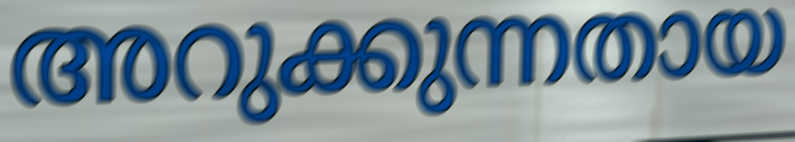
അറുക്കുന്നതായ